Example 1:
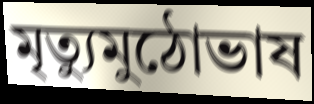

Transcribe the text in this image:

মৃত্যুমুঠোভাষ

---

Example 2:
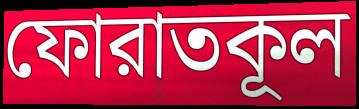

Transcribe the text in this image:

ফোরাতকূল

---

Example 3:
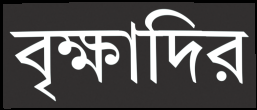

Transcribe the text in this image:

বৃক্ষাদির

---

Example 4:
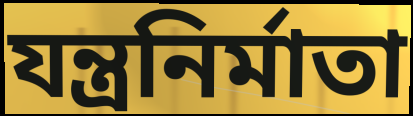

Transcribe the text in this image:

যন্ত্রনির্মাতা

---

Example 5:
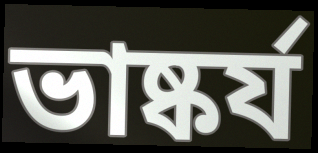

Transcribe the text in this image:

ভাষ্কর্য